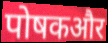
पोषकऔर